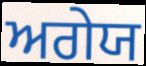
ਅਗੇਯ